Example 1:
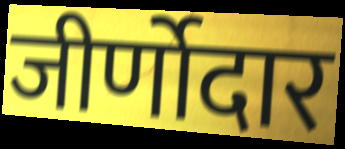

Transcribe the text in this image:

जीर्णोदार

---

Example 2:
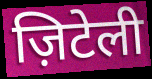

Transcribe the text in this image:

ज़िटेली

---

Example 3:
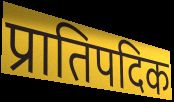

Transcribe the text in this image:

प्रातिपदिक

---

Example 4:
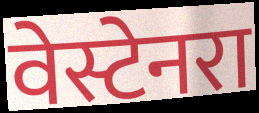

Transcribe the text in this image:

वेस्टेनरा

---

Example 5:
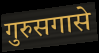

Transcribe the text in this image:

गुरुसगासे